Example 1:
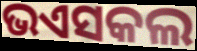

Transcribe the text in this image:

ଭଏସକଲ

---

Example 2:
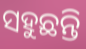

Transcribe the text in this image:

ସହୁଛନ୍ତି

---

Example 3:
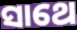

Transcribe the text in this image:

ସାଥେ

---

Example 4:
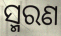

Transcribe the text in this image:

ସ୍ମରଣ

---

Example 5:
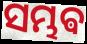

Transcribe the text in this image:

ସମ୍ଭଵ